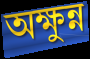
অক্ষুন্ন